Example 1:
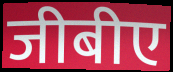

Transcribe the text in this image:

जीबीए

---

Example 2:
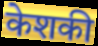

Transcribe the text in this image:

केशकी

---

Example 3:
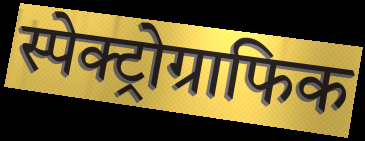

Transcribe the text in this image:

स्पेक्ट्रोग्राफिक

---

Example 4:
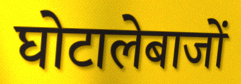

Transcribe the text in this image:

घोटालेबाजों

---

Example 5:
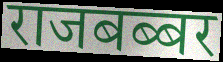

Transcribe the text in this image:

राजबब्बर